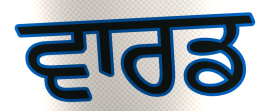
ਵਾਰਡ